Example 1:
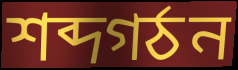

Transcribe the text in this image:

শব্দগঠন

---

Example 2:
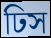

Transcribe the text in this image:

ঢিস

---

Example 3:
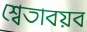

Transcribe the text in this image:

শ্বেতাবয়ব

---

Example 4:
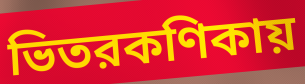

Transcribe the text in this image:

ভিতরকণিকায়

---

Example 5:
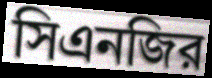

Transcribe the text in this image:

সিএনজির